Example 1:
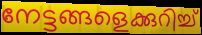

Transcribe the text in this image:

നേട്ടങ്ങളെക്കുറിച്ച്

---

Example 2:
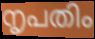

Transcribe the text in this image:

നൃപതിം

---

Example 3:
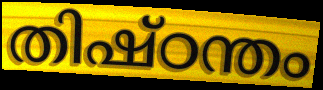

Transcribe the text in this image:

തിഷ്ഠന്തം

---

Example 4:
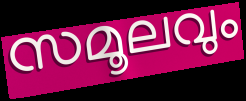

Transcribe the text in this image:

സമൂലവും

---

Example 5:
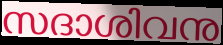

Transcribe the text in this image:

സദാശിവനു